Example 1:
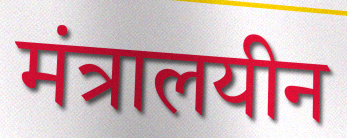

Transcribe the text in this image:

मंत्रालयीन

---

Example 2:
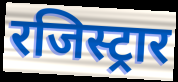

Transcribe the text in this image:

रजिस्ट्रार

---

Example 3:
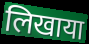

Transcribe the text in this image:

लिखाया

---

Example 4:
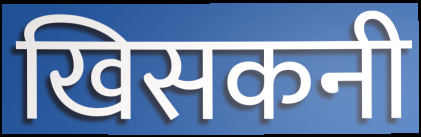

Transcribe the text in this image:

खिसकनी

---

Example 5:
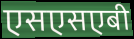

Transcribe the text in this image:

एसएसएबी